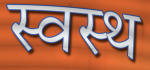
स्वस्थ